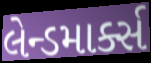
લેન્ડમાર્ક્સ